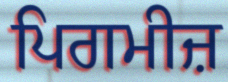
ਪਿਗਮੀਜ਼